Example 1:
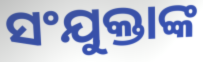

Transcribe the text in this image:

ସଂଯୁକ୍ତାଙ୍କ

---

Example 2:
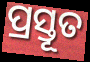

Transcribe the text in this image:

ପ୍ରସ୍ତୂତ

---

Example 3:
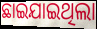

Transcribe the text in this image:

ଛାଇଯାଇଥିଲା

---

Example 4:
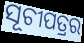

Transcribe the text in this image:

ସୂଚୀପତ୍ରର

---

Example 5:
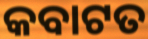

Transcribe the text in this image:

କବାଟତ